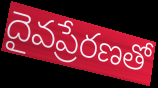
దైవప్రేరణతో